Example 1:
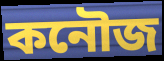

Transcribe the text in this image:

কনৌজ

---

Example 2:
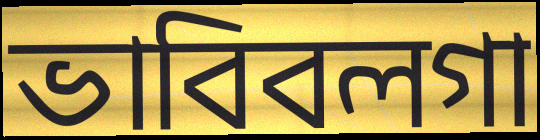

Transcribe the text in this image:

ভাবিবলগা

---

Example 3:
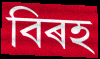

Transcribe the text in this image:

বিৰহ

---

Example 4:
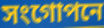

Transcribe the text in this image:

সংগোপনে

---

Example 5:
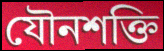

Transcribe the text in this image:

যৌনশক্তি